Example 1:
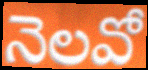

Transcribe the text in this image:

నెలవో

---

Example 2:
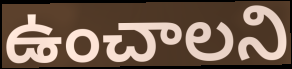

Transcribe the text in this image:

ఉంచాలని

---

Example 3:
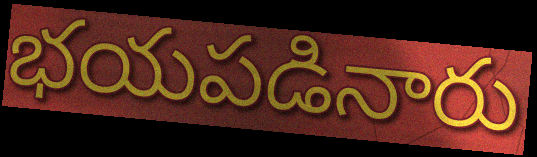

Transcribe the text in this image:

భయపడినారు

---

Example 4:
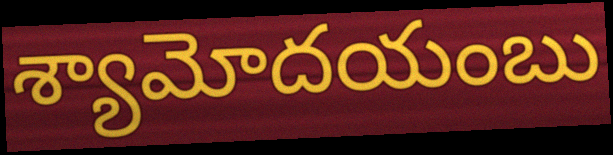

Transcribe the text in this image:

శ్యామోదయంబు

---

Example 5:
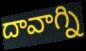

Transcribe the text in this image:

దావాగ్ని